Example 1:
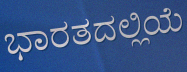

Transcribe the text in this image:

ಭಾರತದಲ್ಲಿಯೆ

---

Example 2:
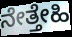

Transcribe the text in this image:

ನೇತ್ತೇಹಿ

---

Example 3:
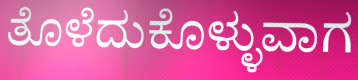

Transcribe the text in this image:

ತೊಳೆದುಕೊಳ್ಳುವಾಗ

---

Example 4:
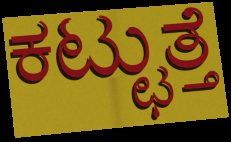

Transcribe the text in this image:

ಕಟ್ಟುತ್ತೆ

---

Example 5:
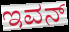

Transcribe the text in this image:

ಇವನ್